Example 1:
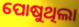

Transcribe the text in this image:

ପୋଷୁଥିଲା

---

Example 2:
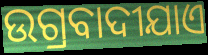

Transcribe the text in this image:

ଉଗ୍ରବାଦୀଯାଏ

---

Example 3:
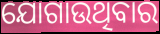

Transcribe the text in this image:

ଯୋଗାଉଥିବାର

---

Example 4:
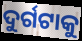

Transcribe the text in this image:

ଦୁର୍ଗଟାକୁ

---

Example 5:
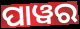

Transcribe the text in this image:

ପାୱର